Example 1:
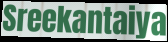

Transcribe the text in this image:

Sreekantaiya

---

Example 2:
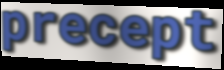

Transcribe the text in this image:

precept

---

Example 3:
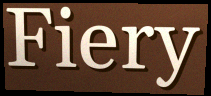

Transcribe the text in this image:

Fiery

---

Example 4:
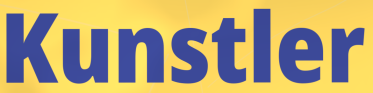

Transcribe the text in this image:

Kunstler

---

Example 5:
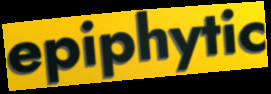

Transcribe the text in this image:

epiphytic